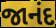
જાનંદ